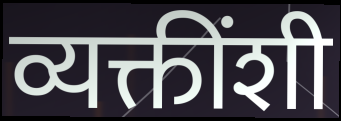
व्यक्तींशी